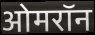
ओमरॉन